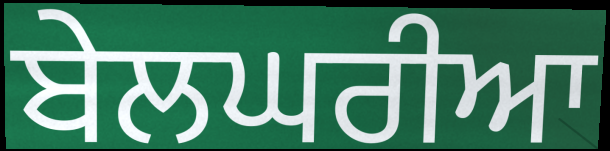
ਬੇਲਘਰੀਆ